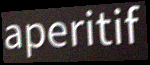
aperitif